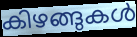
കിഴങ്ങുകൾ